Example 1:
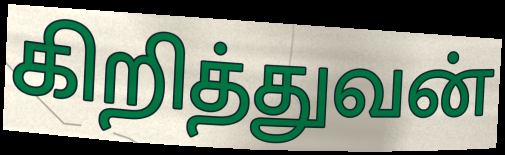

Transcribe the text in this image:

கிறித்துவன்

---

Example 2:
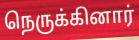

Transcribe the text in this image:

நெருக்கினார்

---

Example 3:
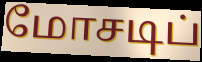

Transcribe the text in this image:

மோசடிப்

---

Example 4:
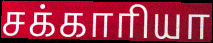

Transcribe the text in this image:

சக்காரியா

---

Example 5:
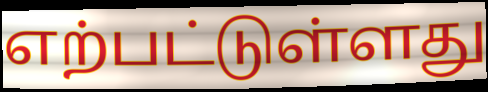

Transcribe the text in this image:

எற்பட்டுள்ளது